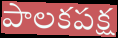
పాలకపక్ష